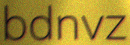
bdnvz